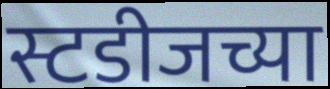
स्टडीजच्या